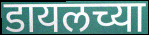
डायलच्या